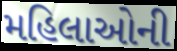
મહિલાઓની